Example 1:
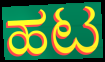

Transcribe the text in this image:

ಹಟ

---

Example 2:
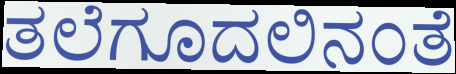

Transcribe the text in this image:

ತಲೆಗೂದಲಿನಂತೆ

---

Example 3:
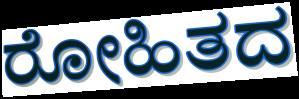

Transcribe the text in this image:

ರೋಹಿತದ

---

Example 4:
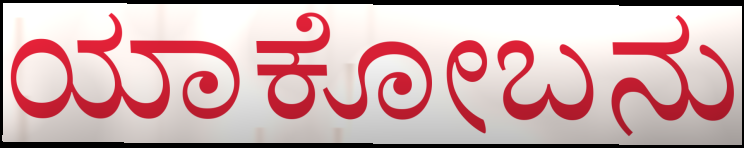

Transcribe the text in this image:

ಯಾಕೋಬನು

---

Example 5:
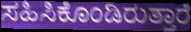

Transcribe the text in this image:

ಸಹಿಸಿಕೊಂಡಿರುತ್ತಾರೆ